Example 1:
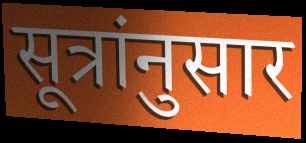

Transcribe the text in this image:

सूत्रांनुसार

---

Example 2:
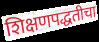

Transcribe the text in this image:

शिक्षणपद्धतीचा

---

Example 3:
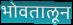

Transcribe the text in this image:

भोवतालून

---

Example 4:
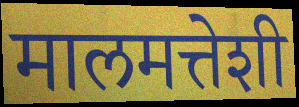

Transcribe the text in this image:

मालमत्तेशी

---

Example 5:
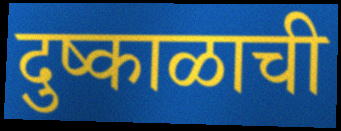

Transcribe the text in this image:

दुष्काळाची